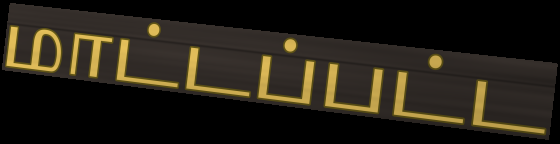
மாட்டப்பட்ட